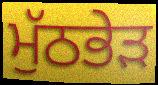
ਮੁੱਠਭੇੜ